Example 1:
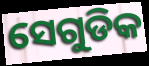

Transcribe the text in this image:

ସେଗୁଡିକ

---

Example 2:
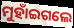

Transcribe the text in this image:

ମୁହାଁଇଗଲେ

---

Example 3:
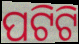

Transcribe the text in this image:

ପଟିଟି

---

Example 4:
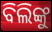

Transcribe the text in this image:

ବିଲିଙ୍କୁ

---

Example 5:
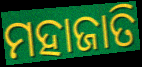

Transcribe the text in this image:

ମହାଜାତି